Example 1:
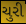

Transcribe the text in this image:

ચુરી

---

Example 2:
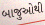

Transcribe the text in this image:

બાજુઓથી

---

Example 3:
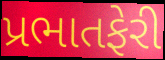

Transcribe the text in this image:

પ્રભાતફેરી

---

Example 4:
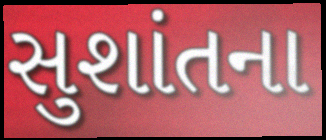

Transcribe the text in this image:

સુશાંતના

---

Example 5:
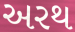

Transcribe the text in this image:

અરથ